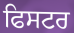
ਫਿਸਟਰ